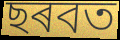
ছৰবত